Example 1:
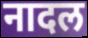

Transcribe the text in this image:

नादल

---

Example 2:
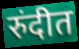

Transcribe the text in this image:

रुंदीत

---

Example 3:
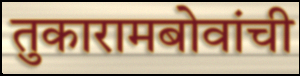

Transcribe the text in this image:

तुकारामबोवांची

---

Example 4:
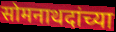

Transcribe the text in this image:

सोमनाथदांच्या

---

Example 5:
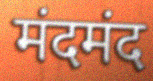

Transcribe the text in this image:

मंदमंद